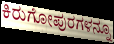
ಕಿರುಗೋಪುರಗಳನ್ನೂ